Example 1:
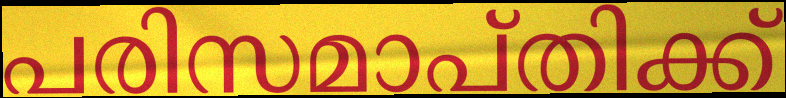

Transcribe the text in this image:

പരിസമാപ്തിക്ക്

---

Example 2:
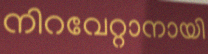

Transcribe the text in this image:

നിറവേറ്റാനായി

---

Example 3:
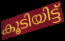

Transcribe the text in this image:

കൂടിയിട്ട്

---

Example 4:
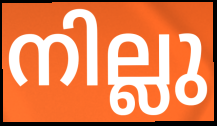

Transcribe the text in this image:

നില്ലു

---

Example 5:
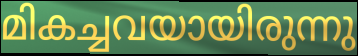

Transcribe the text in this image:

മികച്ചവയായിരുന്നു